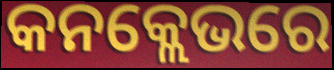
କନକ୍ଲେଭରେ